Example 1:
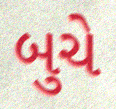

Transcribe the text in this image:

બુચે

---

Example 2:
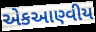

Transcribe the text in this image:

એકઆણ્વીય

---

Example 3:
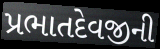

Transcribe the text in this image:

પ્રભાતદેવજીની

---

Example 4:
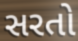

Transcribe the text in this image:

સરતો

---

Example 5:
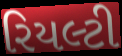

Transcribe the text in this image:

રિયલ્ટી